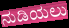
ನುಡಿಯಲು